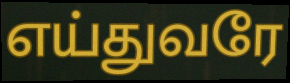
எய்துவரே